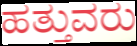
ಹತ್ತುವರು